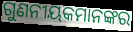
ଗୁଣନୀୟକମାନଙ୍କର